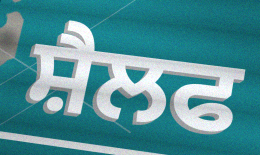
ਸ਼ੈਲਫ